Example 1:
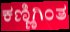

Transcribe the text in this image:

ಕಣ್ಣಿಗಿಂತ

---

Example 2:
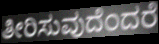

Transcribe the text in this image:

ತೀರಿಸುವುದೆಂದರೆ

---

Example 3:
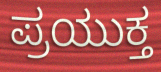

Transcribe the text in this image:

ಪ್ರಯುಕ್ತ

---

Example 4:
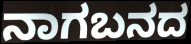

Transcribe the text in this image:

ನಾಗಬನದ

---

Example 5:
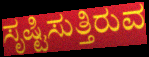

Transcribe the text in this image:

ಸೃಷ್ಟಿಸುತ್ತಿರುವ